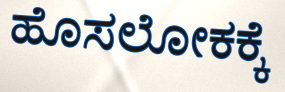
ಹೊಸಲೋಕಕ್ಕೆ